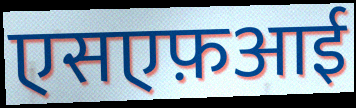
एसएफ़आई